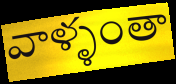
వాళ్ళంతా